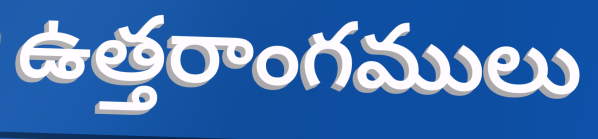
ఉత్తరాంగములు